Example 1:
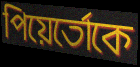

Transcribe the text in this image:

পিয়ের্তোকে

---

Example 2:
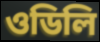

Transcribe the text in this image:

ওডিলি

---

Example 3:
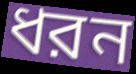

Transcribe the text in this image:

ধরন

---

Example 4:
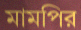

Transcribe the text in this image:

মামপির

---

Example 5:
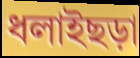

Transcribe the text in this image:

ধলাইছড়া